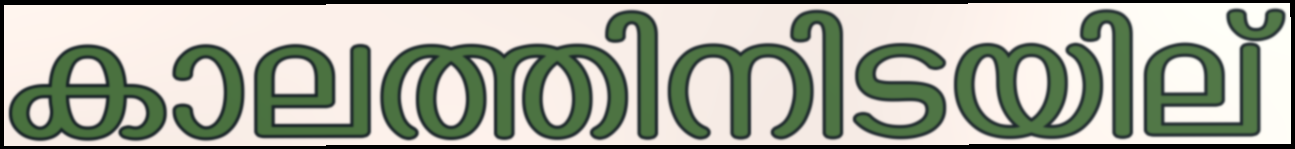
കാലത്തിനിടയില്